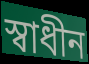
স্ৱাধীন